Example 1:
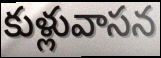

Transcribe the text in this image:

కుళ్లువాసన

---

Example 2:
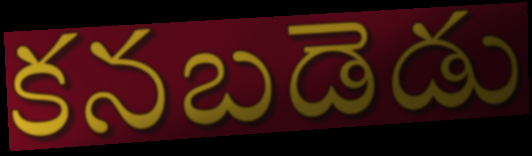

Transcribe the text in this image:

కనబడెడు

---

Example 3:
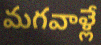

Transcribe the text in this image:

మగవాళ్లే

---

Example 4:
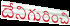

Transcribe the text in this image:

దేనిగురించి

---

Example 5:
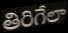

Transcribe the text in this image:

తిరిగేలా